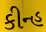
કીન્હ